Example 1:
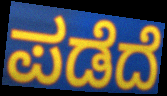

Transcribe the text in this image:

ಪಡೆದೆ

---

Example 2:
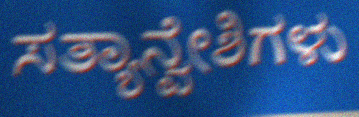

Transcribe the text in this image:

ಸತ್ಯಾನ್ವೇಶಿಗಳು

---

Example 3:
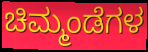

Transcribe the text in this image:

ಚಿಮ್ಮಂಡೆಗಳ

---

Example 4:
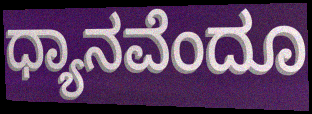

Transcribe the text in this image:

ಧ್ಯಾನವೆಂದೂ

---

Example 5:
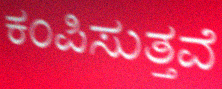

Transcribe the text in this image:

ಕಂಪಿಸುತ್ತವೆ